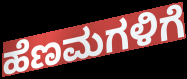
ಹೆಣಮಗಳಿಗೆ